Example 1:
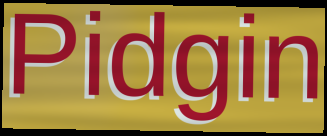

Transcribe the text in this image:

Pidgin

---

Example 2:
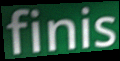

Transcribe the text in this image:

finis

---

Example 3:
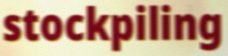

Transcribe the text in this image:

stockpiling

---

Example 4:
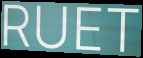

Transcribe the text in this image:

RUET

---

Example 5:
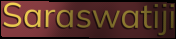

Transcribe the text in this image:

Saraswatiji